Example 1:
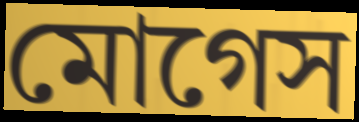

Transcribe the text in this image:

মোগেস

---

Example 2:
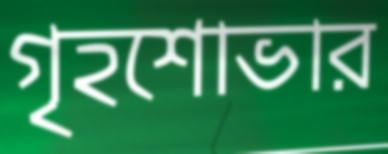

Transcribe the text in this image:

গৃহশোভার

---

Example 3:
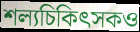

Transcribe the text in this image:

শল্যচিকিৎসকও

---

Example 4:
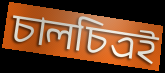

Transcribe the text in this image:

চালচিত্রই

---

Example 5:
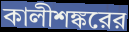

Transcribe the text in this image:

কালীশঙ্করের